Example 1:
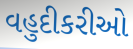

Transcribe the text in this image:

વહુદીકરીઓ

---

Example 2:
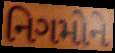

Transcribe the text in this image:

નિગમોને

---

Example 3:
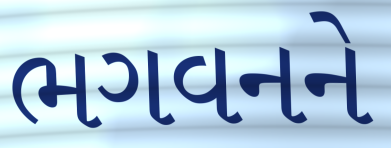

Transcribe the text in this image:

ભગવનને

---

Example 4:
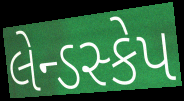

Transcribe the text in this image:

લેન્ડસ્કેપ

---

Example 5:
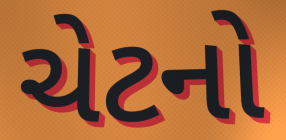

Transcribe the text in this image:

ચેટનો